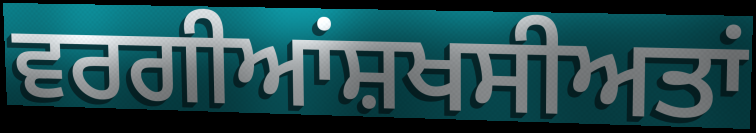
ਵਰਗੀਆਂਸ਼ਖਸੀਅਤਾਂ